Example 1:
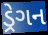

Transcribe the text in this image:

ડ્રેગન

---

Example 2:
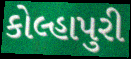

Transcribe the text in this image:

કોલ્હાપુરી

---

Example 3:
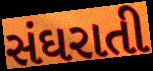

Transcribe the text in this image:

સંઘરાતી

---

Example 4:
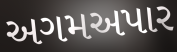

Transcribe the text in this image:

અગમઅપાર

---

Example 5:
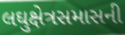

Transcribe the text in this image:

લઘુક્ષેત્રસમાસની